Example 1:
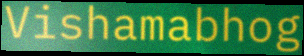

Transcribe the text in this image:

Vishamabhog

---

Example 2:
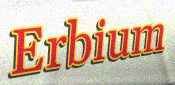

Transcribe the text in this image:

Erbium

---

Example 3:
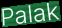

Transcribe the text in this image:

Palak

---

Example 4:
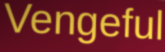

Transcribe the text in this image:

Vengeful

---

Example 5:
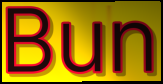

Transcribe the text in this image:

Bun